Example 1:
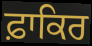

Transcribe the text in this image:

ਫ਼ਾਕਿਰ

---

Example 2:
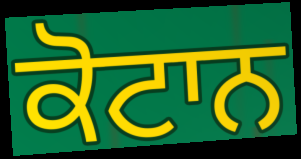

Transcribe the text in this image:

ਕੋਟਾਨ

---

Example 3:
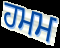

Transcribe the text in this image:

ਹਮਮ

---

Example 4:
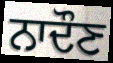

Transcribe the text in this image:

ਨਾਦੌਣ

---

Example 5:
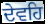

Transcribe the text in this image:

ਦੇਵਹਿ